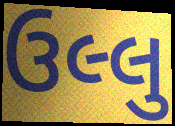
ઉલ્લુ